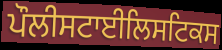
ਪੌਲੀਸਟਾਈਲਿਸਟਿਕਸ